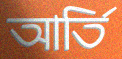
আর্তি